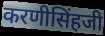
करणीसिंहजी